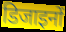
डिजाइनों